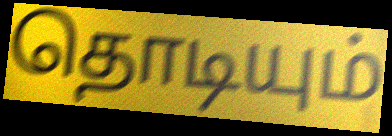
தொடியும்